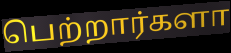
பெற்றார்களா